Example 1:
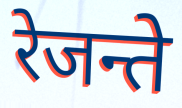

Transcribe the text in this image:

रेजन्ते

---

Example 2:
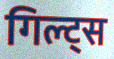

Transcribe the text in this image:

गिल्ट्स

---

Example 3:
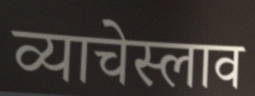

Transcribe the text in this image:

व्याचेस्लाव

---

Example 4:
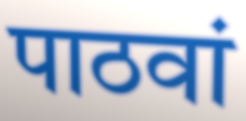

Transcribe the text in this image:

पाठवां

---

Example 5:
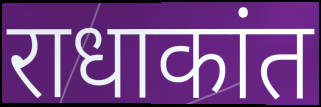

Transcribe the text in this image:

राधाकांत